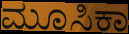
ಮೂಸಿಕಾ